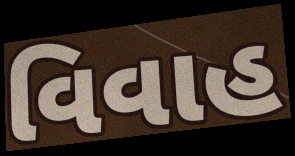
વિવાહ